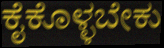
ಕೈಕೊಳ್ಳಬೇಕು